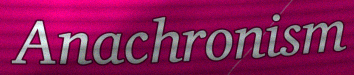
Anachronism